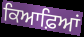
ਕਿਆਫ਼ਿਆਂ